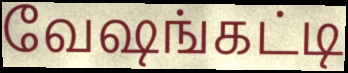
வேஷங்கட்டி